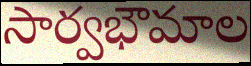
సార్వభౌమాల